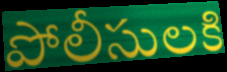
పోలీసులకి